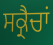
ਸਕ੍ਰੈਚਾਂ